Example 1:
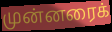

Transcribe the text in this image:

முன்னரைக்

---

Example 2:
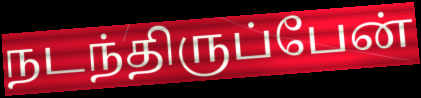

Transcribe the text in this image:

நடந்திருப்பேன்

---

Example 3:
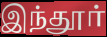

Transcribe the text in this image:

இந்தூர்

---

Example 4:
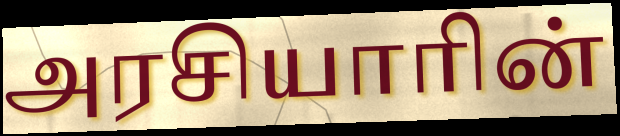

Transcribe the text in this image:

அரசியாரின்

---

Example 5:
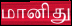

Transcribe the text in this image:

மானிது